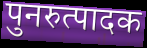
पुनरुत्पादक